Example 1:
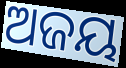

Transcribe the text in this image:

ଅଜୟ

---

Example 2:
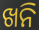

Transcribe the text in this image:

ଖନି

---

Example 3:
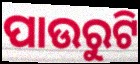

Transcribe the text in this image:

ପାଉରୁଟି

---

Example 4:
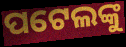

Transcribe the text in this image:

ପଟେଲଙ୍କୁ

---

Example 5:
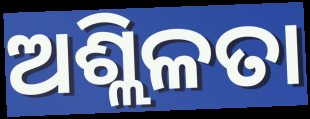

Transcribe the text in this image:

ଅଶ୍ଲିଳତା